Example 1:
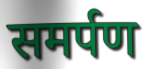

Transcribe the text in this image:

समर्पण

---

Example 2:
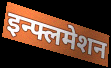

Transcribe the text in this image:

इन्फ्लमेशन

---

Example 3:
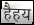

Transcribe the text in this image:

हैहय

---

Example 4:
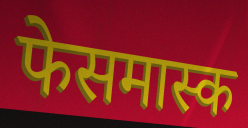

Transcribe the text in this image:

फेसमास्क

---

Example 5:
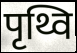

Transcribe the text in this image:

पृथ्वि